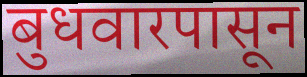
बुधवारपासून